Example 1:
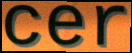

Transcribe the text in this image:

cer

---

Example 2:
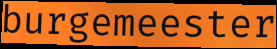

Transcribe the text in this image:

burgemeester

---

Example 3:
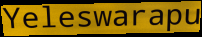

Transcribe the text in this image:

Yeleswarapu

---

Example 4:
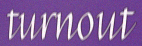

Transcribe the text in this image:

turnout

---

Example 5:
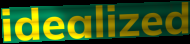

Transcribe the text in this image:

idealized